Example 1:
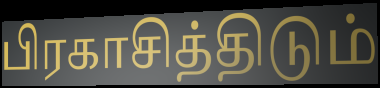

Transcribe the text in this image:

பிரகாசித்திடும்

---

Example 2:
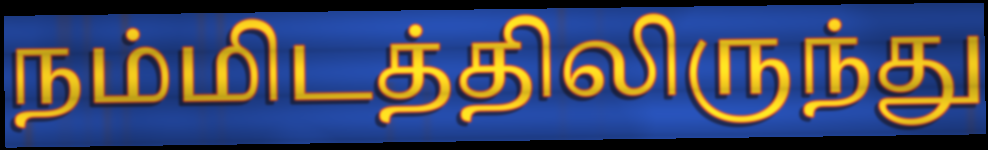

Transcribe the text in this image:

நம்மிடத்திலிருந்து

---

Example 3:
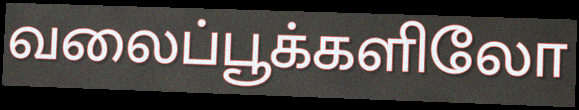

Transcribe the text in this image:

வலைப்பூக்களிலோ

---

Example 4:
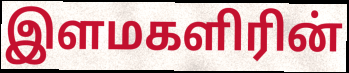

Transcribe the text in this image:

இளமகளிரின்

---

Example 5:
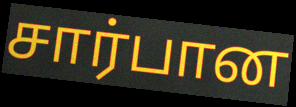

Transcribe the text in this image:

சார்பான